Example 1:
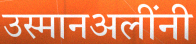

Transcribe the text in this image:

उस्मानअलींनी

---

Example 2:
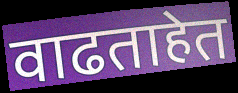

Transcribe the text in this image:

वाढताहेत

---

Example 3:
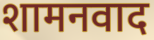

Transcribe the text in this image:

शामनवाद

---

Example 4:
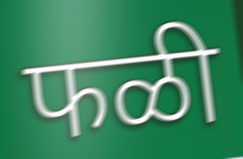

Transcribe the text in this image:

फळी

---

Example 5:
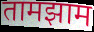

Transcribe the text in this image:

तामझाम